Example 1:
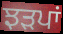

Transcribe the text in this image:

ਝੜਪਾਂ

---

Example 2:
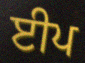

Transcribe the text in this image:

ਈਪ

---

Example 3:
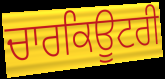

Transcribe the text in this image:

ਚਾਰਕਿਊਟਰੀ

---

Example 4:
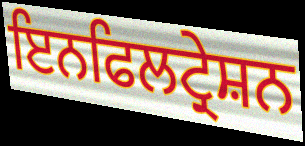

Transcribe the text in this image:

ਇਨਫਿਲਟ੍ਰੇਸ਼ਨ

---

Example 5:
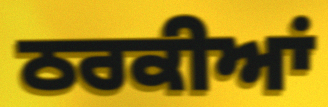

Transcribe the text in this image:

ਠਰਕੀਆਂ